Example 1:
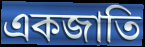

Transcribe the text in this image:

একজাতি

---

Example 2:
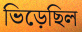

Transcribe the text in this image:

ভিড়েছিল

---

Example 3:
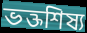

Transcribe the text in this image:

ভক্তশিষ্য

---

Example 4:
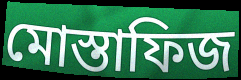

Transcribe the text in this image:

মোস্তাফিজ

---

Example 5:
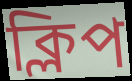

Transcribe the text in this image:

ক্লিপ